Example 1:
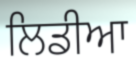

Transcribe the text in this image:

ਲਿਡੀਆ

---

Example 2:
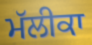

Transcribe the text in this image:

ਮੱਲੀਕਾ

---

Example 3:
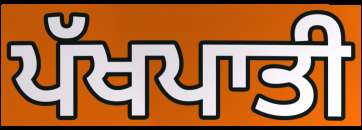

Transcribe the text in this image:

ਪੱਖਪਾਤੀ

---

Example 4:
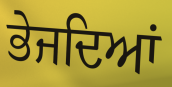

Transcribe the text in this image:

ਭੇਜਦਿਆਂ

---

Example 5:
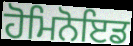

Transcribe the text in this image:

ਹੋਮਿਨੋਇਡ